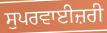
ਸੁਪਰਵਾਈਜ਼ਰੀ